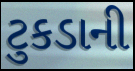
ટુકડાની